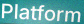
Platform